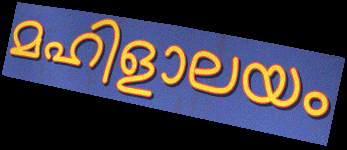
മഹിളാലയം